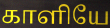
காளியே